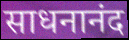
साधनानंद